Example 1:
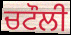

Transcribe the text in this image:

ਚਟੌਲੀ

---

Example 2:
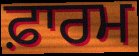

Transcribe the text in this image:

ਫ਼ਾਰਮ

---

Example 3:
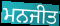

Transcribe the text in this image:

ਮਨਜੀਤ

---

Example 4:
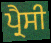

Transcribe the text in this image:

ਪ੍ਰੈਸੀ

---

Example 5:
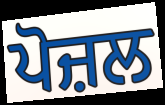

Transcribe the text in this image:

ਪੋਜ਼ਲ